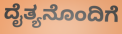
ದೈತ್ಯನೊಂದಿಗೆ